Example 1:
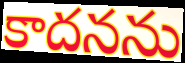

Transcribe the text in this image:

కాదనను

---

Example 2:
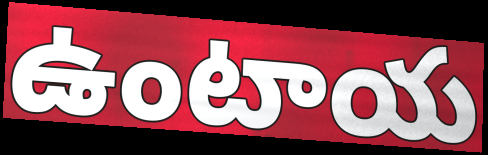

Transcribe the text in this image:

ఉంటాయ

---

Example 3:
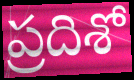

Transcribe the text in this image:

ప్రదిశో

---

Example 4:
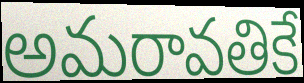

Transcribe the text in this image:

అమరావతికే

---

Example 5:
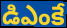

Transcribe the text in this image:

డిఎంకే